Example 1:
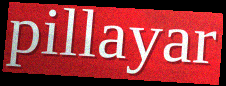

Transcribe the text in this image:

pillayar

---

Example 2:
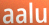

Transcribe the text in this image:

aalu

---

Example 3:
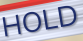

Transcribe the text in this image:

HOLD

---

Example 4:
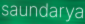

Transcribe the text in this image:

saundarya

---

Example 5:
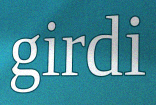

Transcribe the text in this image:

girdi